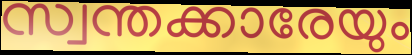
സ്വന്തക്കാരേയും